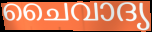
ചൈവാദ്യ